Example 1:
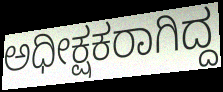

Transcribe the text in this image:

ಅಧೀಕ್ಷಕರಾಗಿದ್ದ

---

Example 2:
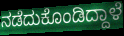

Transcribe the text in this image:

ನಡೆದುಕೊಂಡಿದ್ದಾಳೆ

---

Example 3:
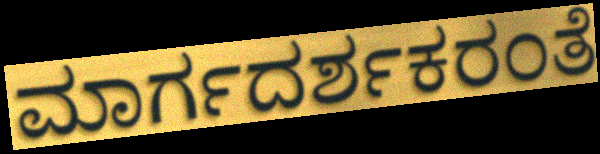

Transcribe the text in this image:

ಮಾರ್ಗದರ್ಶಕರಂತೆ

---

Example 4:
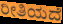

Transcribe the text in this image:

ರೀತಿಯದೆ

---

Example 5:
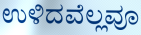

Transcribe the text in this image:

ಉಳಿದವೆಲ್ಲವೂ